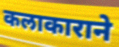
कलाकाराने